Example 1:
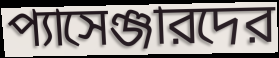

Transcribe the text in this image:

প্যাসেঞ্জারদের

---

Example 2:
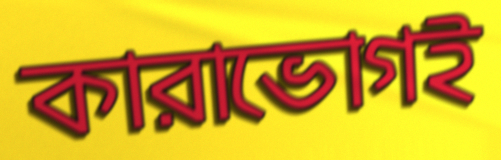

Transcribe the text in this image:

কারাভোগই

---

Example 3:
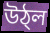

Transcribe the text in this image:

উঠ্ল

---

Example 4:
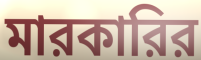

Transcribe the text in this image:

মারকারির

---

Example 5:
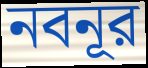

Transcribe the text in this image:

নবনূর